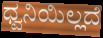
ಧ್ವನಿಯಿಲ್ಲದೆ